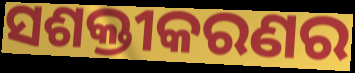
ସଶକ୍ତୀକରଣର